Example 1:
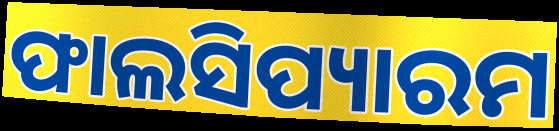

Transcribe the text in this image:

ଫାଲସିପ୍ୟାରମ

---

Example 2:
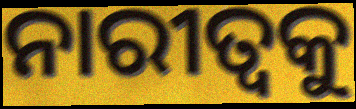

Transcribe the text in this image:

ନାରୀତ୍ୱକୁ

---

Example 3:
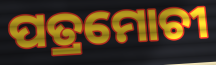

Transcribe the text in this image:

ପତ୍ରମୋଚୀ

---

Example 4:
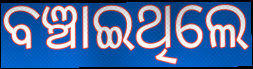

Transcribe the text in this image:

ବଞ୍ଚାଇଥିଲେ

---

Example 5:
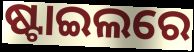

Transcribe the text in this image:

ଷ୍ଟାଇଲରେ